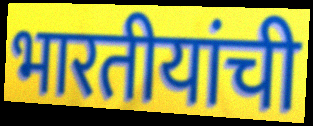
भारतीयांची